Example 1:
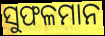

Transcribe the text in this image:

ସୁଫଳମାନ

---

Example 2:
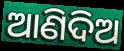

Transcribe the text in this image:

ଆଣିଦିଅ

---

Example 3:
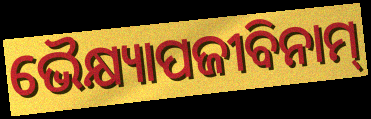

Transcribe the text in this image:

ଭୈକ୍ଷ୍ୟାପଜୀବିନାମ୍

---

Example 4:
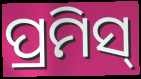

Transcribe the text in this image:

ପ୍ରମିସ୍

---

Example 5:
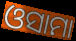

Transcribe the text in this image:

ଓସାମା